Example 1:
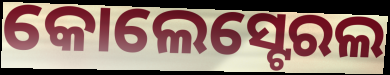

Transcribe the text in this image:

କୋଲେସ୍ଟେରଲ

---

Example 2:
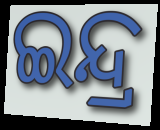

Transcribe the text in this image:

ଇନ୍ଦ୍ର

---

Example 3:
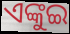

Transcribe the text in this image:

ଏଙ୍କୁଇ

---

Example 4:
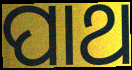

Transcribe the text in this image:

ପାଥ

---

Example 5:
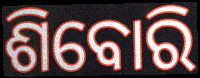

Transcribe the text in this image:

ଶିବୋରି